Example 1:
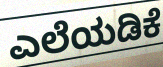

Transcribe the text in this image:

ಎಲೆಯಡಿಕೆ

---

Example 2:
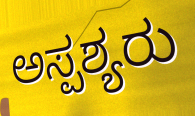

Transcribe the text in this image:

ಅಸ್ಪಶ್ಯರು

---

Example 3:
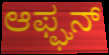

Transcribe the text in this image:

ಆಫ್ಘನ್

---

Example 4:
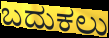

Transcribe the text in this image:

ಬದುಕಲು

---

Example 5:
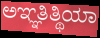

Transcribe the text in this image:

ಅಞ್ಞತಿತ್ಥಿಯಾ